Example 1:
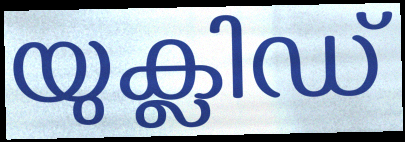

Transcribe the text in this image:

യുക്ലിഡ്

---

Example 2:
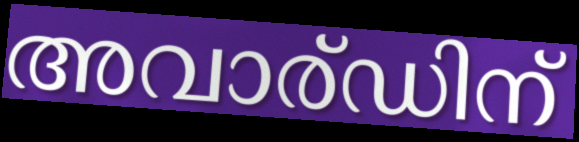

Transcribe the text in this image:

അവാര്ഡിന്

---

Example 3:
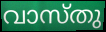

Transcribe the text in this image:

വാസ്തു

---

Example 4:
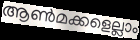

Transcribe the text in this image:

ആൺമക്കളെല്ലാം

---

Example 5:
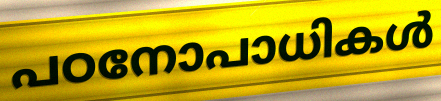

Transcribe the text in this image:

പഠനോപാധികൾ